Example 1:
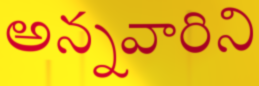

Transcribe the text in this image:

అన్నవారిని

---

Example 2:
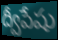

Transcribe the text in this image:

ద్వీపేషు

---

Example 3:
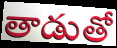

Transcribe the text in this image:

తాడుతో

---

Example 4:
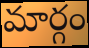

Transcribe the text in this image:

మార్గం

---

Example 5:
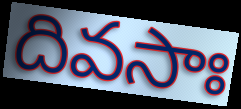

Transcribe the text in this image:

దివసాః